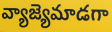
వ్యాజ్యెమాడగా